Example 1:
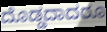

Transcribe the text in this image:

ದೊಡ್ಡದಾದರೂ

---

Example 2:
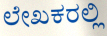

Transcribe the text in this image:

ಲೇಖಕರಲ್ಲಿ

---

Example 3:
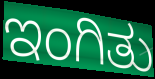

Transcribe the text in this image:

ಇಂಗಿತು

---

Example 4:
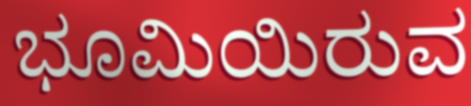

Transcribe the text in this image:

ಭೂಮಿಯಿರುವ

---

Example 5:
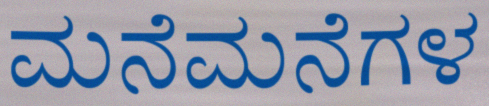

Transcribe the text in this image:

ಮನೆಮನೆಗಳ